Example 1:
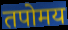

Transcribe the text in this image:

तपोमय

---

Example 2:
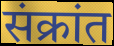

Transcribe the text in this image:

संक्रांत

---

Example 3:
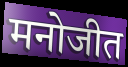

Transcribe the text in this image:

मनोजीत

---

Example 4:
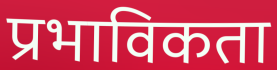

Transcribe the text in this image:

प्रभाविकता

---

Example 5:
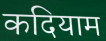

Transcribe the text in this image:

कदियाम